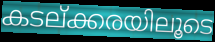
കടല്ക്കരയിലൂടെ